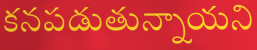
కనపడుతున్నాయని